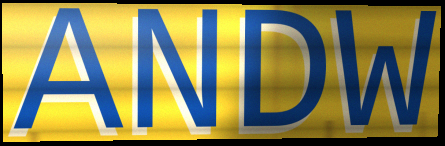
ANDW